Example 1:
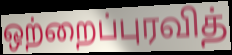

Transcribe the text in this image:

ஒற்றைப்புரவித்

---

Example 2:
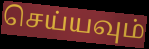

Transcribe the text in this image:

செய்யவும்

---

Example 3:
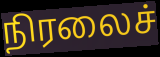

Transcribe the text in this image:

நிரலைச்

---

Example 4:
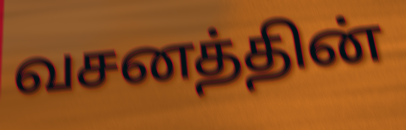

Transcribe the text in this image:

வசனத்தின்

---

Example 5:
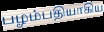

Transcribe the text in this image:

பழம்பதியாகிய